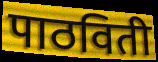
पाठविती